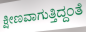
ಕ್ಷೀಣವಾಗುತ್ತಿದ್ದಂತೆ